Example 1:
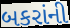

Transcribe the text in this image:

બકરાંની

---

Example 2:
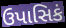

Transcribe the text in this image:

ઉપાસિકં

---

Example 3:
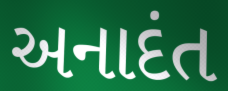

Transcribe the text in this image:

અનાદંત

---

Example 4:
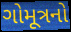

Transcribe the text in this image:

ગોમૂત્રનો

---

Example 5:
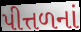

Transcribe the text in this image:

પીત્તળનાં